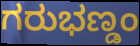
ಗರುಭಣ್ಡಂ